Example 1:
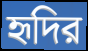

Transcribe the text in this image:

হৃদির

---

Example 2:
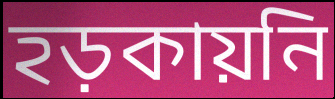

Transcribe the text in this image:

হড়কায়নি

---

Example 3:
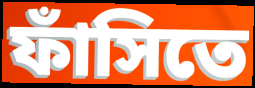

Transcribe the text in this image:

ফাঁসিতে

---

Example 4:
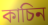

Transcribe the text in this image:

কাচিন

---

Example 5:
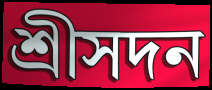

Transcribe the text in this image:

শ্রীসদন